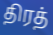
திரத்